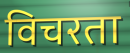
विचरता